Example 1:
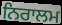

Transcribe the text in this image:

ਨਿਰਾਲਮ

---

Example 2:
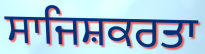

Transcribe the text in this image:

ਸਾਜਿਸ਼ਕਰਤਾ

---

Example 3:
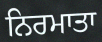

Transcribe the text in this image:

ਨਿਰਮਾਤਾ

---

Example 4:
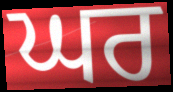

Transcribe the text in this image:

ਘਰ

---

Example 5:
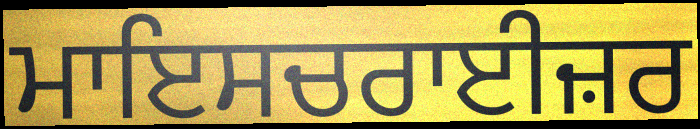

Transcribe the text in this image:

ਮਾਇਸਚਰਾਈਜ਼ਰ